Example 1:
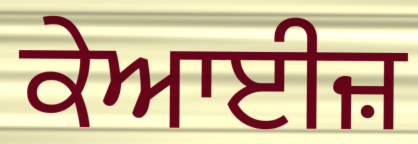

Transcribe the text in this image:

ਕੇਆਈਜ਼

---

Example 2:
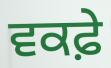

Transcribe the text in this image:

ਵਕਫ਼ੇ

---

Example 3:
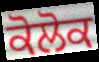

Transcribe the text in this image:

ਕੋਲੋਕ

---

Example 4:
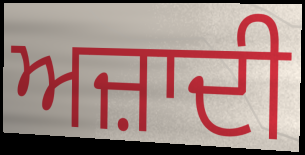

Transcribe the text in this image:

ਅਜ਼ਾਦੀ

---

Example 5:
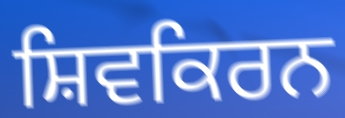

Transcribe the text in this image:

ਸ਼ਿਵਕਿਰਨ